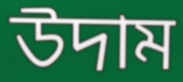
উদাম